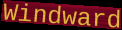
Windward